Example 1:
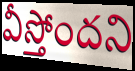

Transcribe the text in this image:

వీస్తోందని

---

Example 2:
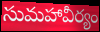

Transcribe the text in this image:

సుమహావీర్యం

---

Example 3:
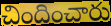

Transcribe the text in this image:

చిందించారు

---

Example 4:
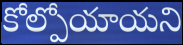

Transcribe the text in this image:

కోల్పోయాయని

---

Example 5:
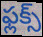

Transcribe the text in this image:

ఫ్లక్స్